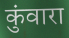
कुंवारा